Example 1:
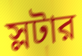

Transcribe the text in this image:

স্লটার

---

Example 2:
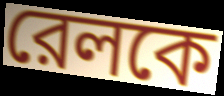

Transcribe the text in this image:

রেলকে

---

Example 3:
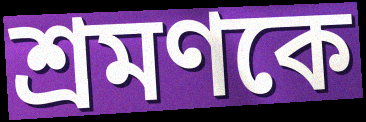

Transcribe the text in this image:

শ্রমণকে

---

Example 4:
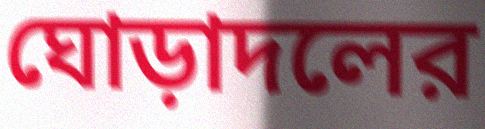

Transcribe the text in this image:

ঘোড়াদলের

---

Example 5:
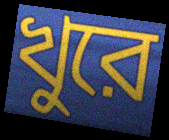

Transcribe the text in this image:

খুরে